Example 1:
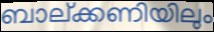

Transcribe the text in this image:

ബാല്ക്കണിയിലും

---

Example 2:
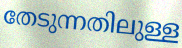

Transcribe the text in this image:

തേടുന്നതിലുള്ള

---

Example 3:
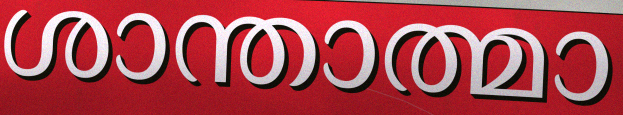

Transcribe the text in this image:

ശാന്താത്മാ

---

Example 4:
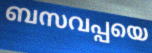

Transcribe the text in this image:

ബസവപ്പയെ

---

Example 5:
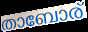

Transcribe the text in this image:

താബോര്